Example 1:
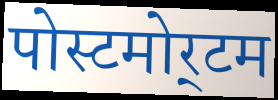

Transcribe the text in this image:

पोस्टमोर्टम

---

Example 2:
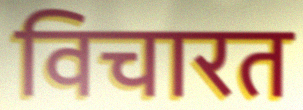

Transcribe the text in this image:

विचारत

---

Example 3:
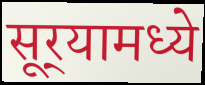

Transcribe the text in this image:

सूर्यामध्ये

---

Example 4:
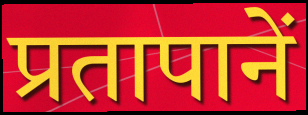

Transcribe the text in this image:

प्रतापानें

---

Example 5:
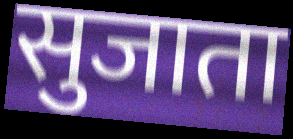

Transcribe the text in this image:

सुजाता